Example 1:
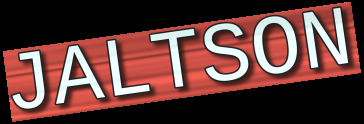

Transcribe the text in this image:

JALTSON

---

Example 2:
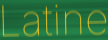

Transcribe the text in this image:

Latine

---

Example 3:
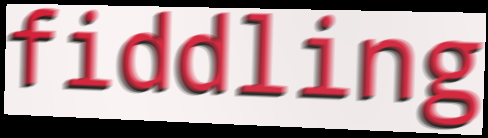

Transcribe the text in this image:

fiddling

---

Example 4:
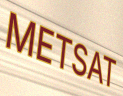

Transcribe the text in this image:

METSAT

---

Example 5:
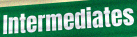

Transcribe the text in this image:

Intermediates